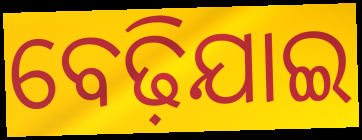
ବେଢ଼ିଯାଇ